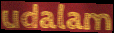
udalam